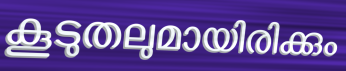
കൂടുതലുമായിരിക്കും